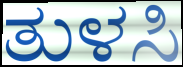
ತುಳಸಿ